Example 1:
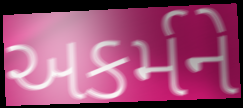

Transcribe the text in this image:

અકર્મને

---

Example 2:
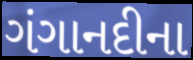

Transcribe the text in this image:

ગંગાનદીના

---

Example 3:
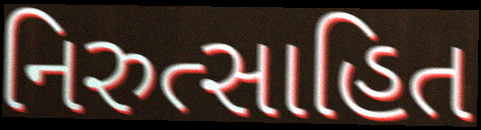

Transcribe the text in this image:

નિરુત્સાહિત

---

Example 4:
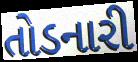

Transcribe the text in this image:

તોડનારી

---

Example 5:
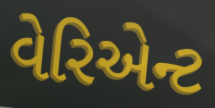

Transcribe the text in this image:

વેરિએન્ટ